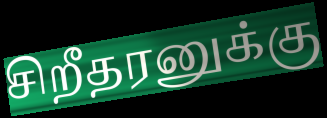
சிறீதரனுக்கு